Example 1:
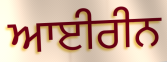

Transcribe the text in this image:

ਆਈਰੀਨ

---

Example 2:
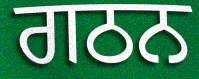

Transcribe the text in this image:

ਗਠਨ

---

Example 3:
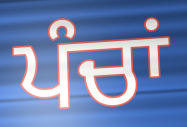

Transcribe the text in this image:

ਪੰਚਾਂ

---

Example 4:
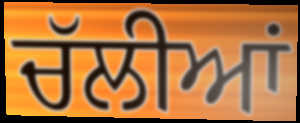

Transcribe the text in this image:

ਚੱਲੀਆਂ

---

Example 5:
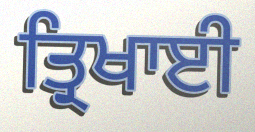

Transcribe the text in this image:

ਤ੍ਰਿਖਾਈ